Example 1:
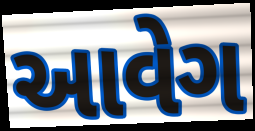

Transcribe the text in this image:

આવેગ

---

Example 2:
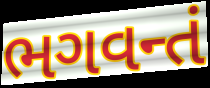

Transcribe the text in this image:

ભગવન્તં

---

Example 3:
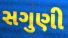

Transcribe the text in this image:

સગુણી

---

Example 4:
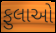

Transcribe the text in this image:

ફુલાઓ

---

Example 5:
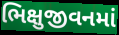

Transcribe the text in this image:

ભિક્ષુજીવનમાં